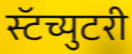
स्टॅच्युटरी